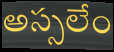
అస్సలేం